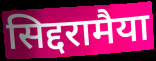
सिद्दरामैया